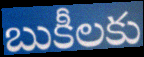
బుకీలకు